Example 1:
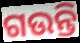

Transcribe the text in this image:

ଗଉନ୍ତି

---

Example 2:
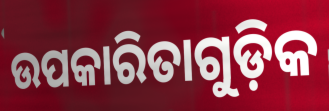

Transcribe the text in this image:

ଉପକାରିତାଗୁଡ଼ିକ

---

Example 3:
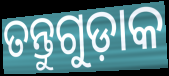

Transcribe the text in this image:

ତନ୍ତୁଗୁଡ଼ାକ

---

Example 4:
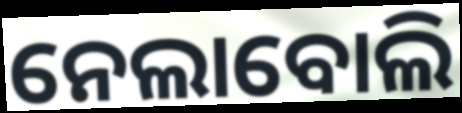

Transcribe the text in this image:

ନେଲାବୋଲି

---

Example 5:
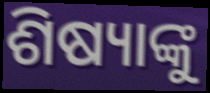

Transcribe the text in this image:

ଶିଷ୍ୟାଙ୍କୁ